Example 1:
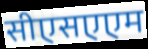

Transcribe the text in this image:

सीएसएएम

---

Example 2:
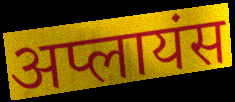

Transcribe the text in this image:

अप्लायंस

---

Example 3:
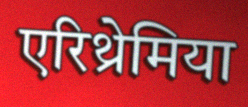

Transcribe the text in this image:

एरिथ्रेमिया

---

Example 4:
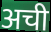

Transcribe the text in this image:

अची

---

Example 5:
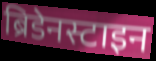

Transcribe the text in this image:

ब्रिडेनस्टाइन